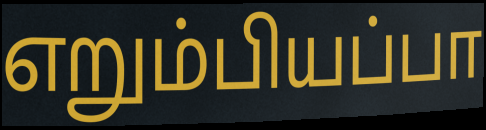
எறும்பியப்பா